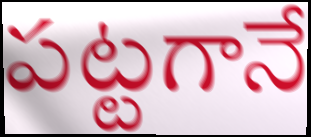
పట్టగానే